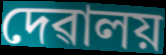
দেৱালয়